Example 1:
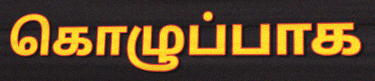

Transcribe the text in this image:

கொழுப்பாக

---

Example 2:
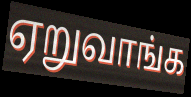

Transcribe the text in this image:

ஏறுவாங்க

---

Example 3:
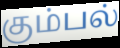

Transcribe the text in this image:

கும்பல்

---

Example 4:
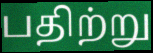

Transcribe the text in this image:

பதிற்று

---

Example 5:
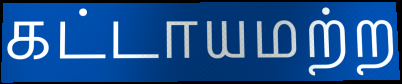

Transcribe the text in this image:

கட்டாயமற்ற